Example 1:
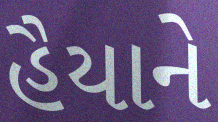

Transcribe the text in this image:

હૈયાને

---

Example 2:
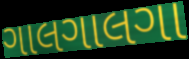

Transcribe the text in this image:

ગાલગાલગા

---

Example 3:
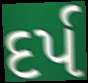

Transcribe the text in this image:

દર્પ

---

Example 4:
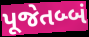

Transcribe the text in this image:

પૂજેતબ્બં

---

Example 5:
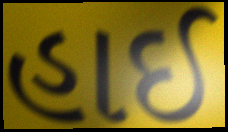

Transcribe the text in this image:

હાઈ